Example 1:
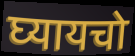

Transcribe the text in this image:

घ्यायचो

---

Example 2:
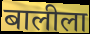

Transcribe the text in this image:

बालीला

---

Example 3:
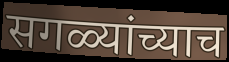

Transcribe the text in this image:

सगळ्यांच्याच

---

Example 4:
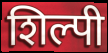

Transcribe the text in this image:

शिल्पी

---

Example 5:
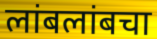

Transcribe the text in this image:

लांबलांबचा